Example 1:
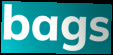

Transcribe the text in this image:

bags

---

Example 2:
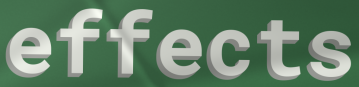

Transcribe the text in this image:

effects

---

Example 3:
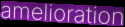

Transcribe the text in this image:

amelioration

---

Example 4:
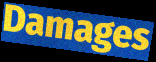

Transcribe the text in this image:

Damages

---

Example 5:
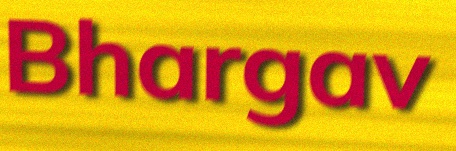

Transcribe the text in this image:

Bhargav